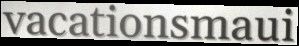
vacationsmaui